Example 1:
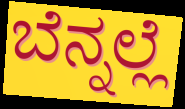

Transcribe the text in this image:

ಬೆನ್ನಲ್ಲೆ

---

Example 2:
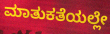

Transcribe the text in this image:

ಮಾತುಕತೆಯಲ್ಲೇ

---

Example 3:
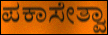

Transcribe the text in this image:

ಪಕಾಸೇತ್ವಾ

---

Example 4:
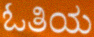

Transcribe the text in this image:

ಓತಿಯ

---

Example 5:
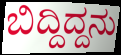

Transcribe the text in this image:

ಬಿದ್ದಿದ್ದನು